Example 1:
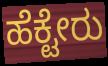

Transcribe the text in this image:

ಹೆಕ್ಟೇರು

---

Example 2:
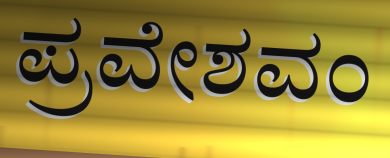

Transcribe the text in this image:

ಪ್ರವೇಶವಂ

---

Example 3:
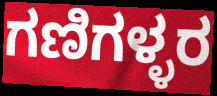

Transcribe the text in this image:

ಗಣಿಗಳ್ಳರ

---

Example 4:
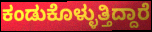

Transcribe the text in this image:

ಕಂಡುಕೊಳ್ಳುತ್ತಿದ್ದಾರೆ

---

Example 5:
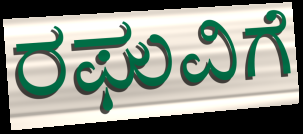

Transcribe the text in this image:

ರಘುವಿಗೆ